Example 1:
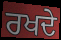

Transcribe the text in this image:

ਰਖਦੇ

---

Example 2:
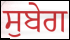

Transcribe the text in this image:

ਸੁਬੇਗ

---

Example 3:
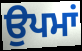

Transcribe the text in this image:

ਉਪਮਾਂ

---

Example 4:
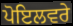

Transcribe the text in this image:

ਪੋਇਲਵਰੇ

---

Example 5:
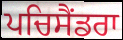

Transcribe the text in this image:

ਪਚਿਸੈਂਡਰਾ